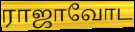
ராஜாவோட